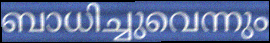
ബാധിച്ചുവെന്നും